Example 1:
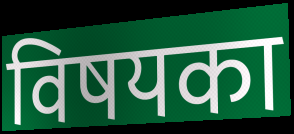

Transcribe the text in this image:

विषयका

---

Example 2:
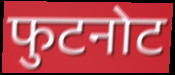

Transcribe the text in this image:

फुटनोट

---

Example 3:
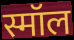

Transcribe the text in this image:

स्मॉल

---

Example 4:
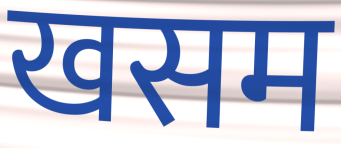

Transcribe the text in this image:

खसम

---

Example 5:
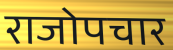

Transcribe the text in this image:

राजोपचार